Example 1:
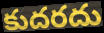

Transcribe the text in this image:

కుదరదు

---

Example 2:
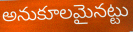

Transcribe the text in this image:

అనుకూలమైనట్టు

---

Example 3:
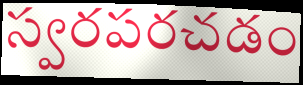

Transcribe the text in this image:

స్వరపరచడం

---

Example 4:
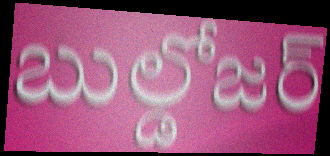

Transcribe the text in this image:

బుల్డోజర్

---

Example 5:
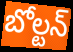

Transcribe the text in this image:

బోల్టన్